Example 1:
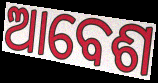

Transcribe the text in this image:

ଆବେଶ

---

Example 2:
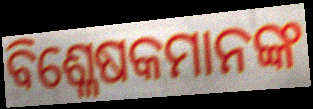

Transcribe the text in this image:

ବିଶ୍ଳେଷକମାନଙ୍କ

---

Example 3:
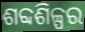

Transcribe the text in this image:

ଶବ୍ଦଶିଳ୍ପର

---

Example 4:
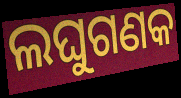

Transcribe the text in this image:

ଲଘୁଗଣକ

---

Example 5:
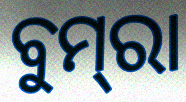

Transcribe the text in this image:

ବୁମ୍‌ରା